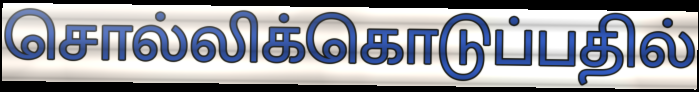
சொல்லிக்கொடுப்பதில்